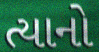
ત્યાનો